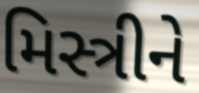
મિસ્ત્રીને